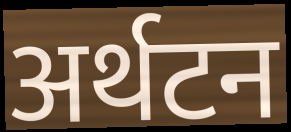
अर्थटन